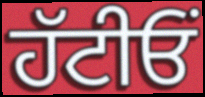
ਹੱਟੀਓਂ